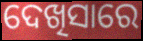
ଦେଖିସାରେ